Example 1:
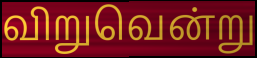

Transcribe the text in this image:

விறுவென்று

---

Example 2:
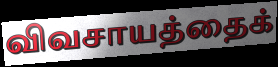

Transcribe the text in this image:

விவசாயத்தைக்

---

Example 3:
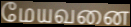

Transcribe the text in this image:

மேயவனை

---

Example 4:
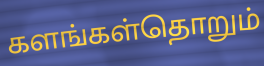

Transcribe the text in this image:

களங்கள்தொறும்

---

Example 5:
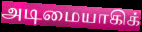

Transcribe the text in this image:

அடிமையாகிக்